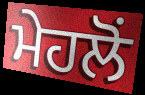
ਮੇਹਲੋਂ